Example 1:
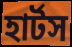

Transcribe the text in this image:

হার্টস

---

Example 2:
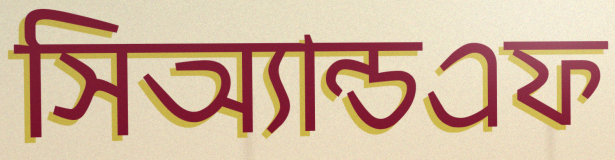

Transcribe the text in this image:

সিঅ্যান্ডএফ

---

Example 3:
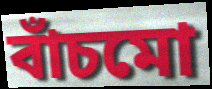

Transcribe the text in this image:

বাঁচমো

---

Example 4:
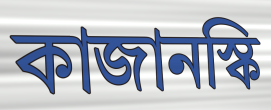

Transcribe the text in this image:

কাজানস্কি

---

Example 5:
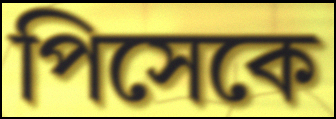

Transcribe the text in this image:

পিসেকে